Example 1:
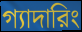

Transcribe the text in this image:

গ্যাদারিং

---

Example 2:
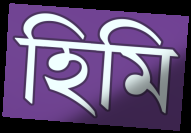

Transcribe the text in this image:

হিমি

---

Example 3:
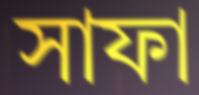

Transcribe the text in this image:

সাফা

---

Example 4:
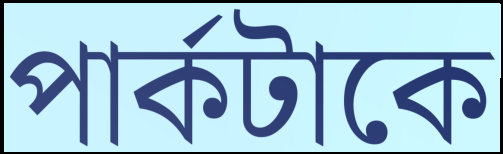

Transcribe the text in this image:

পার্কটাকে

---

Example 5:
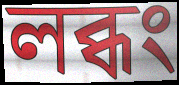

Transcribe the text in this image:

লব্ধং